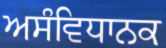
ਅਸੰਵਿਧਾਨਕ